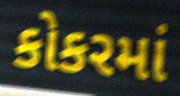
કોકરમાં